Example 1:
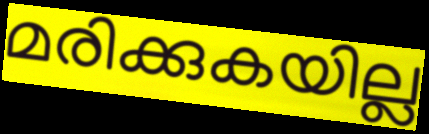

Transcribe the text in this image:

മരിക്കുകയില്ല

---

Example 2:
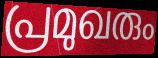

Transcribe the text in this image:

പ്രമുഖരും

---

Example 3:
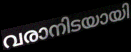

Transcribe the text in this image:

വരാനിടയായി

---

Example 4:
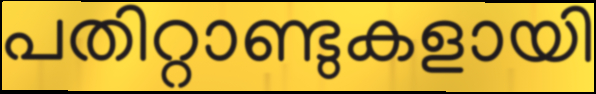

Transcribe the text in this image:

പതിറ്റാണ്ടുകളായി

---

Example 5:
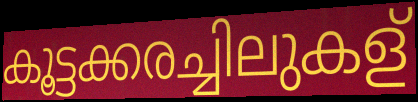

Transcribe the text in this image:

കൂട്ടക്കരച്ചിലുകള്